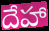
దేహా